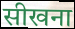
सीखना